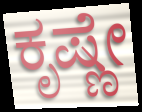
ಕೃಷ್ಣೇ